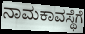
ನಾಮಕಾವಸ್ಥೆಗೆ